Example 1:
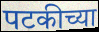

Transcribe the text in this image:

पटकीच्या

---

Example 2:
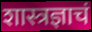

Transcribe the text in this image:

शास्त्रज्ञाचं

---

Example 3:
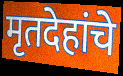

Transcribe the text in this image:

मृतदेहांचे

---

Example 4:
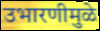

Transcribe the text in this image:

उभारणीमुळे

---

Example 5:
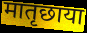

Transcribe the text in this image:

मातृछाया